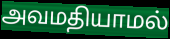
அவமதியாமல்